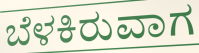
ಬೆಳಕಿರುವಾಗ